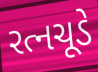
રત્નચૂડે